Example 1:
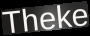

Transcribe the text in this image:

Theke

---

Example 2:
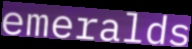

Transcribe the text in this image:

emeralds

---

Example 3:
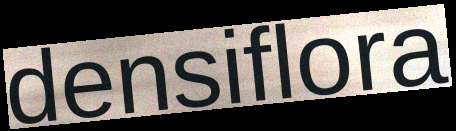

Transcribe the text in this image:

densiflora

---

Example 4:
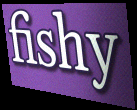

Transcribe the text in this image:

fishy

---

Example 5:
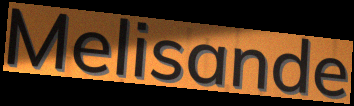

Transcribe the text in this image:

Melisande